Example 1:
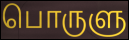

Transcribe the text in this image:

பொருளு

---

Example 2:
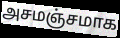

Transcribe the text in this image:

அசமஞ்சமாக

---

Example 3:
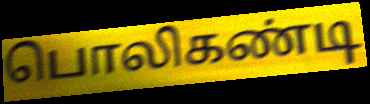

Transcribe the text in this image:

பொலிகண்டி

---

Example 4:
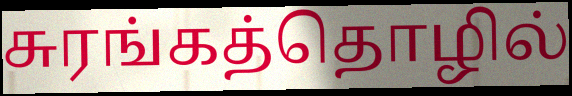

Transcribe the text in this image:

சுரங்கத்தொழில்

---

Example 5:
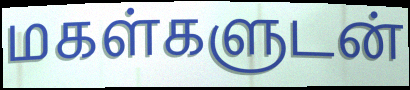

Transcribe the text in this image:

மகள்களுடன்